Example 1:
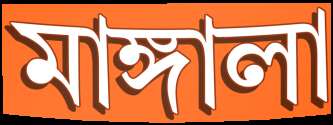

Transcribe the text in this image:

মাঙ্গালা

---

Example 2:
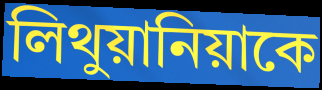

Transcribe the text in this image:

লিথুয়ানিয়াকে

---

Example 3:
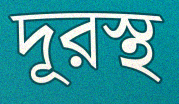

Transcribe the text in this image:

দূরস্থ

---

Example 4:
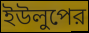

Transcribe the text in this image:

ইউলুপের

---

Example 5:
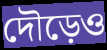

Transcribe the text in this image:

দৌড়েও